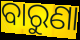
ବାରୁଣା